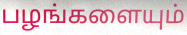
பழங்களையும்